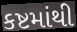
કષ્ટમાંથી